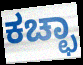
ಕಚ್ಛಾ